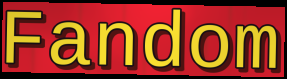
Fandom